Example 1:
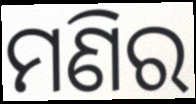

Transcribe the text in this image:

ମଣିର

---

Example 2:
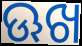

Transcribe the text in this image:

ଊଖ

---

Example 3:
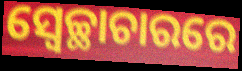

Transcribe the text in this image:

ସ୍ବେଚ୍ଛାଚାରରେ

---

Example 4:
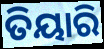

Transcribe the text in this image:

ତିୟାରି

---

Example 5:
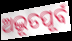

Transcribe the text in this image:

ଅଦ୍ଭୂତପୂର୍ବ